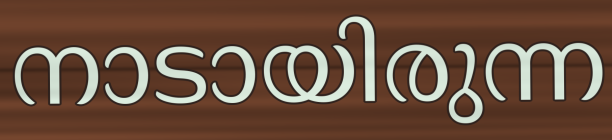
നാടായിരുന്ന